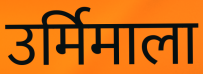
उर्मिमाला